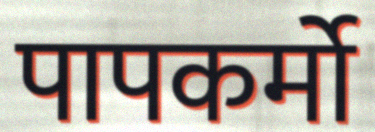
पापकर्मो